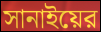
সানাইয়ের